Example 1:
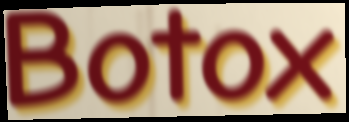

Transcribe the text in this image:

Botox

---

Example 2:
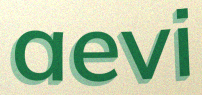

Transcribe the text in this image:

aevi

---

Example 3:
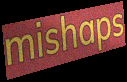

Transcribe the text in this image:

mishaps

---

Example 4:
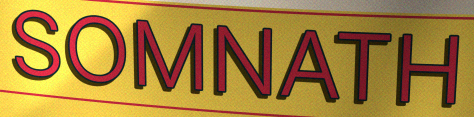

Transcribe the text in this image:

SOMNATH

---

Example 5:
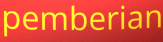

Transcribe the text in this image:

pemberian